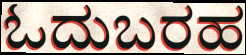
ಓದುಬರಹ